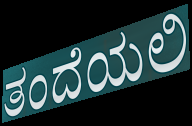
ತಂದೆಯಲಿ